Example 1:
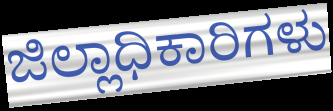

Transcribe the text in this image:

ಜಿಲ್ಲಾಧಿಕಾರಿಗಳು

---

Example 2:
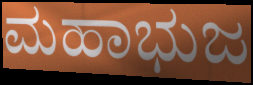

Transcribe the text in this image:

ಮಹಾಭುಜ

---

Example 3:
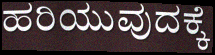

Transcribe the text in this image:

ಹರಿಯುವುದಕ್ಕೆ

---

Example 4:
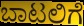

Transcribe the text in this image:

ಬಾಟಲಿಗೆ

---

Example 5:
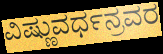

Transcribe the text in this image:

ವಿಷ್ಣುವರ್ಧನ್ರವರ